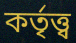
কর্তৃত্ত্ব